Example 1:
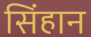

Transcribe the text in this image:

सिंहान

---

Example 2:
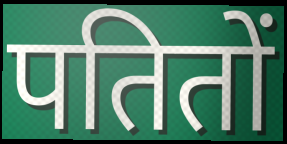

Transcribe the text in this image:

पतितों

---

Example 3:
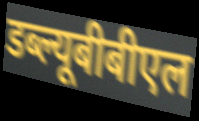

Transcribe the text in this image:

डब्ल्यूबीबीएल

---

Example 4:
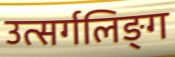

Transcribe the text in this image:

उत्सर्गलिङ्ग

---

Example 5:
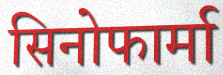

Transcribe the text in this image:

सिनोफार्मा